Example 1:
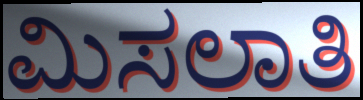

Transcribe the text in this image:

ಮಿಸಲಾತಿ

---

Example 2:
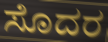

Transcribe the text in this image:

ಸೊದರ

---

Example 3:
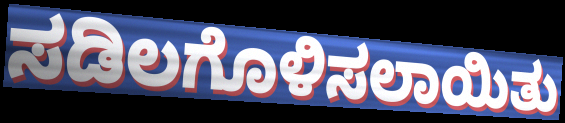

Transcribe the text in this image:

ಸಡಿಲಗೊಳಿಸಲಾಯಿತು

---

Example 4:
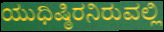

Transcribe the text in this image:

ಯುಧಿಷ್ಠಿರನಿರುವಲ್ಲಿ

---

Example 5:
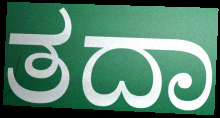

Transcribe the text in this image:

ತದಾ